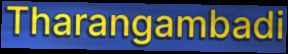
Tharangambadi